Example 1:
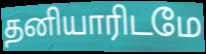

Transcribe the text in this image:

தனியாரிடமே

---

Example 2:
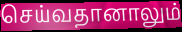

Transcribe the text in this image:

செய்வதானாலும்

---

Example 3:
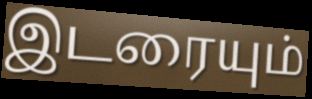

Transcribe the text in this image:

இடரையும்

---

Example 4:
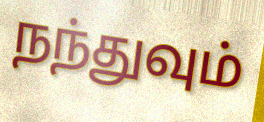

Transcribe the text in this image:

நந்துவும்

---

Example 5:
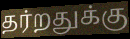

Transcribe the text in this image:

தர்றதுக்கு